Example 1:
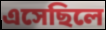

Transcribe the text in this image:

এসেছিলে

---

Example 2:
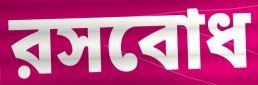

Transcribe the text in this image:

রসবোধ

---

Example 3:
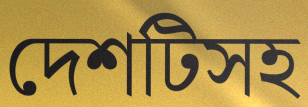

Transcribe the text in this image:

দেশটিসহ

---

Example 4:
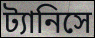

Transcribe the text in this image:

ট্যানিসে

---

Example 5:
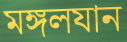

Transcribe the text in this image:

মঙ্গলযান